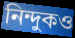
নিন্দুকও